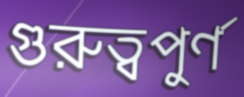
গুৰুত্বপুৰ্ণ